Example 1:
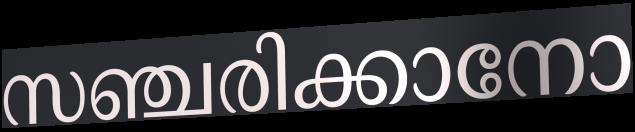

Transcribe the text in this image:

സഞ്ചരിക്കാനോ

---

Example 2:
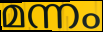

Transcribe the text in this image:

മന്നം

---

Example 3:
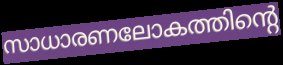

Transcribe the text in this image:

സാധാരണലോകത്തിന്റെ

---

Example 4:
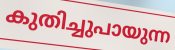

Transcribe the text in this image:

കുതിച്ചുപായുന്ന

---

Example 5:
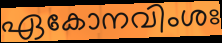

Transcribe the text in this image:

ഏകോനവിംശഃ